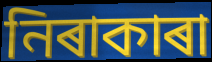
নিৰাকাৰা